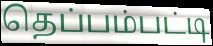
தெப்பம்பட்டி